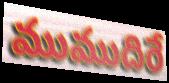
ముముదిరే